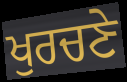
ਖੁਰਚਣੇ